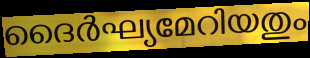
ദൈർഘ്യമേറിയതും